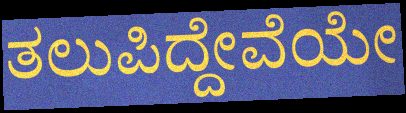
ತಲುಪಿದ್ದೇವೆಯೇ